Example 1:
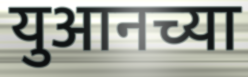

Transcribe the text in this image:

युआनच्या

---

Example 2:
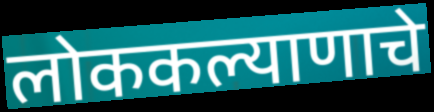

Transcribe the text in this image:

लोककल्याणाचे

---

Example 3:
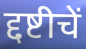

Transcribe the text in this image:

द्दष्टीचें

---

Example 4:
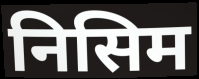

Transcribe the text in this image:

निसिम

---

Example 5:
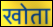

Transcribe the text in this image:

खोता